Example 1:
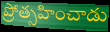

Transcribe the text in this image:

ప్రోత్సహించాడు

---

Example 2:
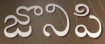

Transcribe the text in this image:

జొనిపి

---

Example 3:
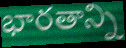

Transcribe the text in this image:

భారతాన్ని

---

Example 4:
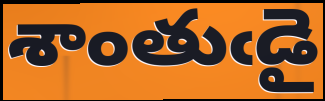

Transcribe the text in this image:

శాంతుఁడై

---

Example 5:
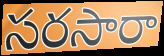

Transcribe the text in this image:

సరసారా